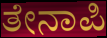
ತೇನಾಪಿ